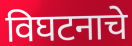
विघटनाचे